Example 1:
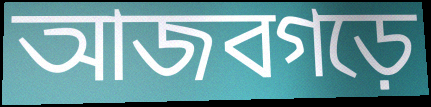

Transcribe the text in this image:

আজবগড়ে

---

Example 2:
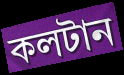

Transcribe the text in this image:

কলটান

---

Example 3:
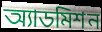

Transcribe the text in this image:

অ্যাডমিশন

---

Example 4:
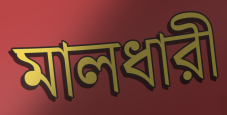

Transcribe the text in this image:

মালধারী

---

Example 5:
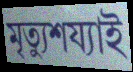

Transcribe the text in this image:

মৃত্যুশয্যাই